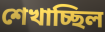
শেখাচ্ছিল